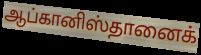
ஆப்கானிஸ்தானைக்